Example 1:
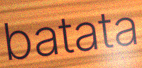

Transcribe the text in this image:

batata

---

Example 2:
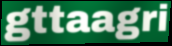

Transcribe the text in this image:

gttaagri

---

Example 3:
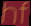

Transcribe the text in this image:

hf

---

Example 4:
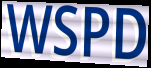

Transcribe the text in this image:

WSPD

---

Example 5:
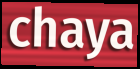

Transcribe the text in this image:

chaya